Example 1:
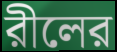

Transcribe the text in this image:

রীলের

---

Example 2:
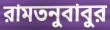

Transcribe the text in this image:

রামতনুবাবুর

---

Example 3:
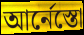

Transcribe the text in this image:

আর্নেস্তো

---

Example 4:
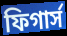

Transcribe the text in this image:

ফিগার্স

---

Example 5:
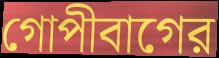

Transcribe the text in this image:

গোপীবাগের